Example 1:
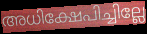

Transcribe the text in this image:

അധിക്ഷേപിച്ചില്ലേ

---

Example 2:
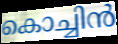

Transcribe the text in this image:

കൊച്ചിൻ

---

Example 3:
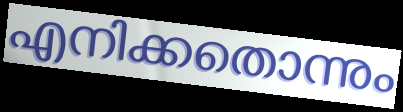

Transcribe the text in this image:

എനിക്കതൊന്നും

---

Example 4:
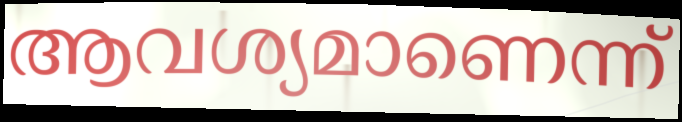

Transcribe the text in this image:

ആവശ്യമാണെന്ന്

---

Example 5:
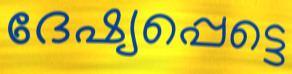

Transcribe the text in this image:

ദേഷ്യപ്പെട്ടെ